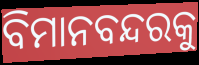
ବିମାନବନ୍ଦରକୁ